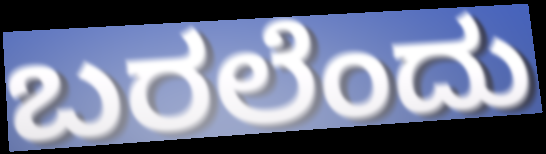
ಬರಲೆಂದು